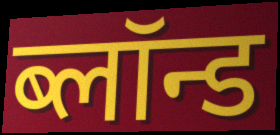
ब्लॉन्ड